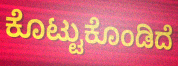
ಕೊಟ್ಟುಕೊಂಡಿದೆ